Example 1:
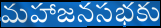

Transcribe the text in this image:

మహాజనసభకు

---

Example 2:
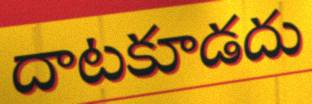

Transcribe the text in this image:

దాటకూడదు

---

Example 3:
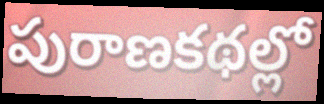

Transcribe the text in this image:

పురాణకథల్లో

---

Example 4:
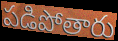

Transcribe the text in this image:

పడిపోతారు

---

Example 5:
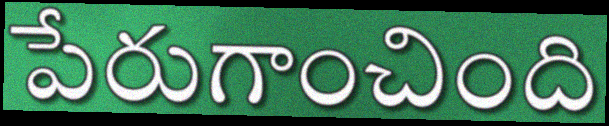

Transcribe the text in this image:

పేరుగాంచింది